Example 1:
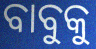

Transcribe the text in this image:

ବାବୁକୁ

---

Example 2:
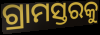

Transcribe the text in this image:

ଗ୍ରାମସ୍ତରକୁ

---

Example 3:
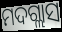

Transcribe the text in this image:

ମଦଗ୍ଲାସ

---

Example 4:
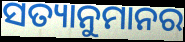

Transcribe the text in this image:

ସତ୍ୟାନୁମାନର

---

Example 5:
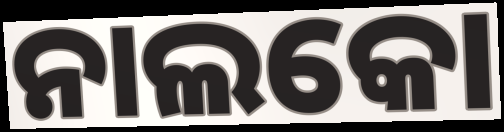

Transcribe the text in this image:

ନାଲକୋ